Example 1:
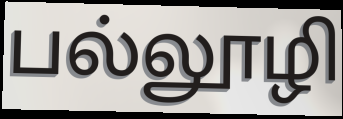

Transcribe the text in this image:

பல்லூழி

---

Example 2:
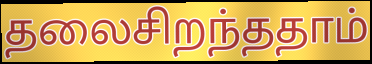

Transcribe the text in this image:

தலைசிறந்ததாம்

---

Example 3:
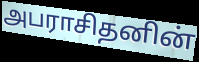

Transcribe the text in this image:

அபராசிதனின்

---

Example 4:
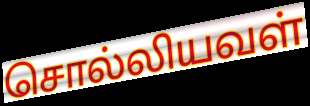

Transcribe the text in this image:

சொல்லியவள்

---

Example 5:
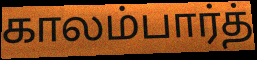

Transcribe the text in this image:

காலம்பார்த்